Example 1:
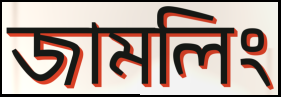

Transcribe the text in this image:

জামলিং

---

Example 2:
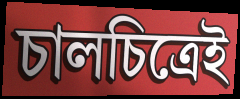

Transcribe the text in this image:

চালচিত্রেই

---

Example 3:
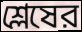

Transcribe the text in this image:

শ্লেষের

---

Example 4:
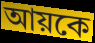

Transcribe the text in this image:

আয়কে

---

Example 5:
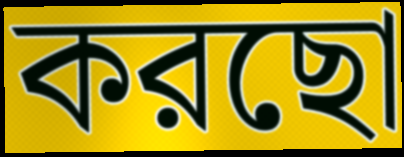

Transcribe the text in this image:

করছো